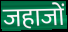
जहाजों